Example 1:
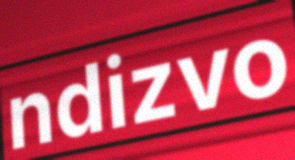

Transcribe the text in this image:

ndizvo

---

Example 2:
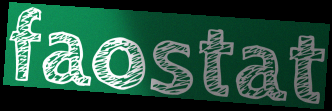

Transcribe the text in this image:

faostat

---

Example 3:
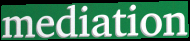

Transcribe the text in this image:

mediation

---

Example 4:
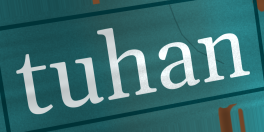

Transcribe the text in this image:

tuhan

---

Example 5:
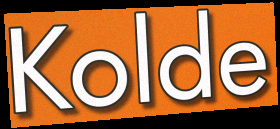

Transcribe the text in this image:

Kolde